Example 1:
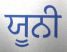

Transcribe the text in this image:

ਯੂਨੀ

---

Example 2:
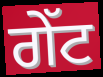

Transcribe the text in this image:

ਗੇੱਟ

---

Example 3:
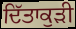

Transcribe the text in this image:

ਦਿੱਤਾਕੁੜੀ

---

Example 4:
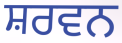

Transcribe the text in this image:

ਸ਼ਰਵਨ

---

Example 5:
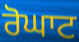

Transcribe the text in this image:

ਰੋਘਾਟ